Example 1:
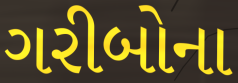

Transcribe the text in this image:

ગરીબોના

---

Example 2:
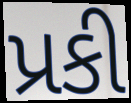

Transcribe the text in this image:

પ્રકી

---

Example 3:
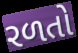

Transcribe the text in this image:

રળતો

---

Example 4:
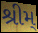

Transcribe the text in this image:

શ્રીમ્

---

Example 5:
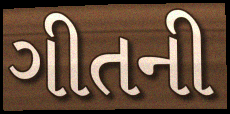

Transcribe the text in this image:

ગીતની